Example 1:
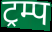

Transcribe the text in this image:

ट्रम्प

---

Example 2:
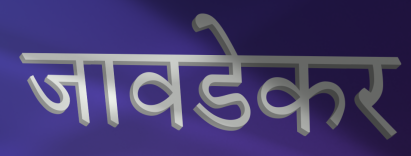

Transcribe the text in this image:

जावडेकर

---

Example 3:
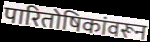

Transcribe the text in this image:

पारितोषिकांवरून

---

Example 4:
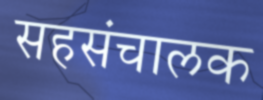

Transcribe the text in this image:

सहसंचालक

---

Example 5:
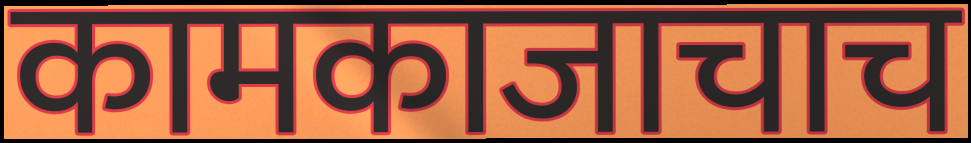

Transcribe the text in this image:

कामकाजाचाच